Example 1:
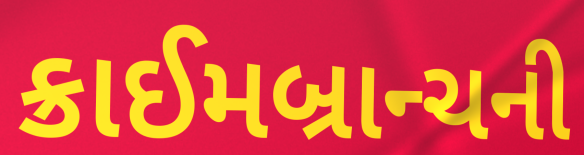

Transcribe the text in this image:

ક્રાઈમબ્રાન્ચની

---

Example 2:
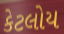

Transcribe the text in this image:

કેટલોય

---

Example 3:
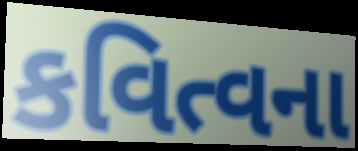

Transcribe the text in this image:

કવિત્વના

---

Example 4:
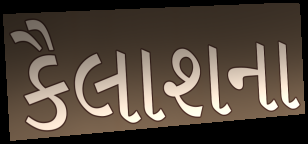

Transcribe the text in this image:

કૈલાશના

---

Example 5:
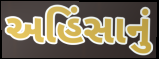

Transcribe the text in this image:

અહિંસાનું